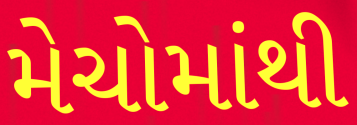
મેચોમાંથી